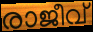
രാജീവ്